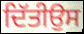
ਦਿੱਤੀਉਸ